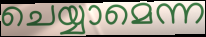
ചെയ്യാമെന്ന